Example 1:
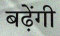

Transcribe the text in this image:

बढ़ेंगी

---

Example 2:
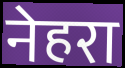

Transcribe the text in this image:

नेहरा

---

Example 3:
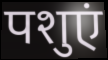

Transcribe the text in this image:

पशुएं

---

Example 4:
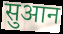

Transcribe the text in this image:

सुआन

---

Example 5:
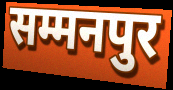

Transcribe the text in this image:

सम्मनपुर